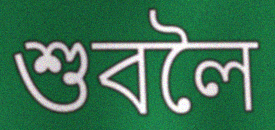
শুবলৈ